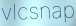
vlcsnap